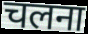
चलना